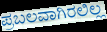
ಪ್ರಬಲವಾಗಿರಲಿಲ್ಲ